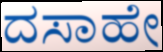
ದಸಾಹೇ